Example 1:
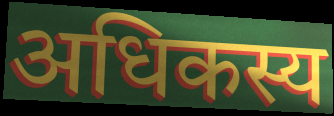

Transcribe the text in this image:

अधिकस्य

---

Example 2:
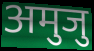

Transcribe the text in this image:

अमुजु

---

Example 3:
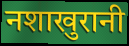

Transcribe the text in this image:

नशाखुरानी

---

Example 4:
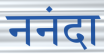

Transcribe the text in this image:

ननंदा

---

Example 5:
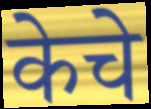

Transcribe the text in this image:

केचे